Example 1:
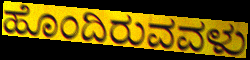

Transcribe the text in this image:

ಹೊಂದಿರುವವಳು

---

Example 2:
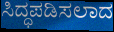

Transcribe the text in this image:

ಸಿದ್ಧಪಡಿಸಲಾದ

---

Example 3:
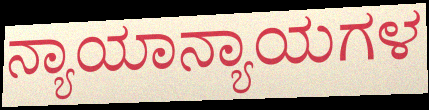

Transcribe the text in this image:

ನ್ಯಾಯಾನ್ಯಾಯಗಳ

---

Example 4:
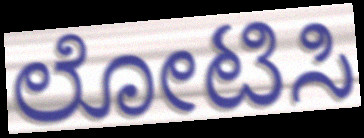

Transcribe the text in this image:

ಲೋಟಿಸಿ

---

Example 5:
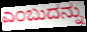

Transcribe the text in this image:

ಎಂಬುದನ್ನು